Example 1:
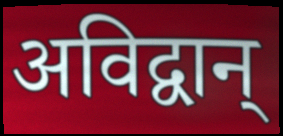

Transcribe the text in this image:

अविद्वान्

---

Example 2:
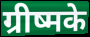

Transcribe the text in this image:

ग्रीष्मके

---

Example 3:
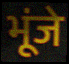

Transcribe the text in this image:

भूंजे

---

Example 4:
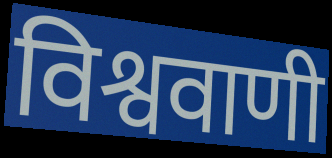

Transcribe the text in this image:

विश्ववाणी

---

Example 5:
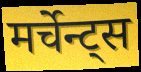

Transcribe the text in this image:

मर्चेन्ट्स